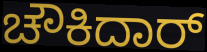
ಚೌಕಿದಾರ್